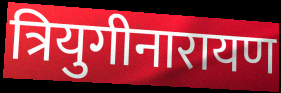
त्रियुगीनारायण